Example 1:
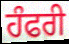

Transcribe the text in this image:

ਹੰਫਰੀ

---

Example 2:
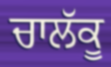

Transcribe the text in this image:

ਚਾਲੱਕੂ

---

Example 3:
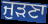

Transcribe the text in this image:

ਜੁੜਣਾ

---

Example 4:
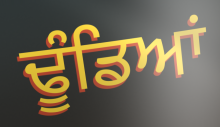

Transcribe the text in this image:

ਢੂੰਡਿਆਂ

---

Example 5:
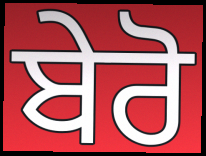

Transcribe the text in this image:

ਬੇਰੋ